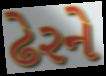
ઢેરને